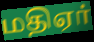
மதிஏர்